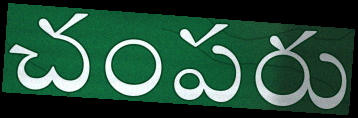
చంపరు